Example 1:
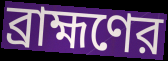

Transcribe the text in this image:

ব্রাহ্মণের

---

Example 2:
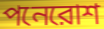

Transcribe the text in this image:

পনেরোশ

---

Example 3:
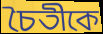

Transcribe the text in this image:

চৈতীকে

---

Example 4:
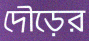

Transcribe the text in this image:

দৌড়ের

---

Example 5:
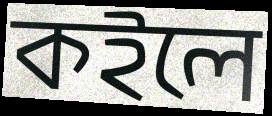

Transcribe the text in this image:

কইলে